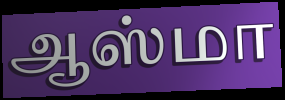
ஆஸ்மா